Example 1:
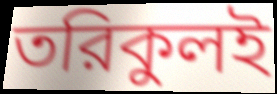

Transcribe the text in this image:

তরিকুলই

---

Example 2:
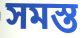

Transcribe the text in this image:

সমস্ত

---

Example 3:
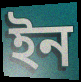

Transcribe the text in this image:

ইন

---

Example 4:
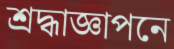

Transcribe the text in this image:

শ্রদ্ধাজ্ঞাপনে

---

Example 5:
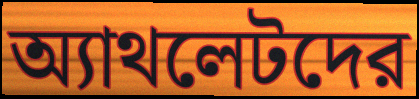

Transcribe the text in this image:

অ্যাথলেটদের